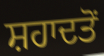
ਸ਼ਹਾਦਤੋਂ